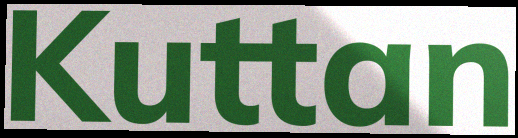
Kuttan